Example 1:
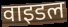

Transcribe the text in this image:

वाइडल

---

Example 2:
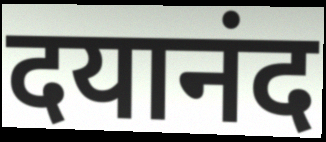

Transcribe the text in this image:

दयानंद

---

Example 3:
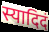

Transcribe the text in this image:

स्यादिदं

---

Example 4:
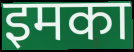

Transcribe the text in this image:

इमका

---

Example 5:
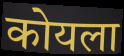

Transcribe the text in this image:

कोयला